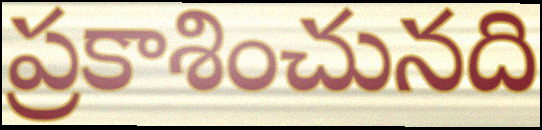
ప్రకాశించునది